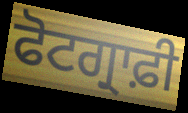
ਫੋਟਗ੍ਰਾਫ਼ੀ